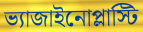
ভ্যাজাইনোপ্লাস্টি